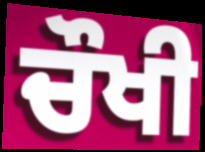
ਚੌਖੀ